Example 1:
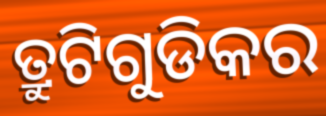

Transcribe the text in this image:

ତ୍ରୁଟିଗୁଡିକର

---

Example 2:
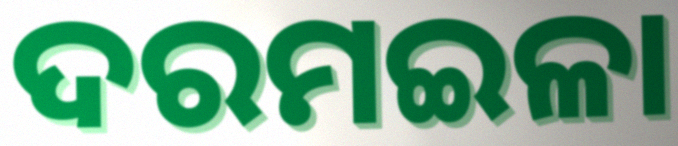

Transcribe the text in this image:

ଦରମଇଳା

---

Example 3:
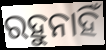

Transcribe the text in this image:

ରହୁନାହିଁ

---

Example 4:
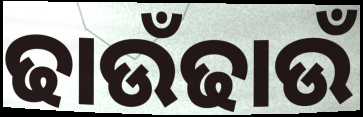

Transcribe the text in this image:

ଢାଉଁଢାଉଁ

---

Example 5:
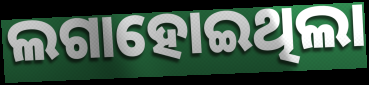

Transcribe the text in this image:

ଲଗାହୋଇଥିଲା